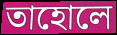
তাহোলে